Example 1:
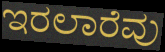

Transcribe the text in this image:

ಇರಲಾರೆವು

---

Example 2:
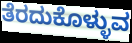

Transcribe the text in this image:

ತೆರದುಕೊಳ್ಳುವ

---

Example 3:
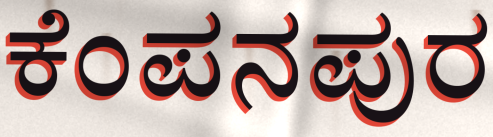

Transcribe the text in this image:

ಕೆಂಪನಪುರ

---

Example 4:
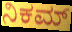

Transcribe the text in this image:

ನಿಕಮ್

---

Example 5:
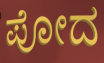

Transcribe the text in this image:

ಪೋದ